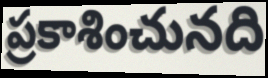
ప్రకాశించునది